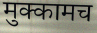
मुक्कामच